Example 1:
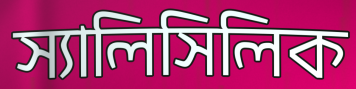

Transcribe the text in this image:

স্যালিসিলিক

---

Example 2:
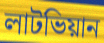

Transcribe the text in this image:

লাটভিয়ান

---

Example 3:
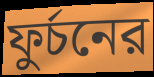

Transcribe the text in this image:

ফুর্চনের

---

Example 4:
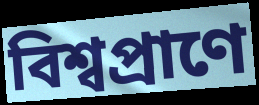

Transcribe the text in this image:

বিশ্বপ্রাণে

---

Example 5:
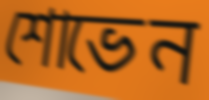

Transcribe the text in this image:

শোভেন